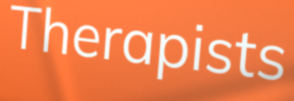
Therapists